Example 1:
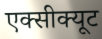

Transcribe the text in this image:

एक्सीक्यूट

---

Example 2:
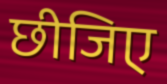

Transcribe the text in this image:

छीजिए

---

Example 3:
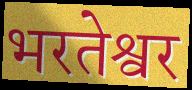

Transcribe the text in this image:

भरतेश्वर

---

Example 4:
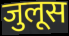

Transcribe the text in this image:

जुलूस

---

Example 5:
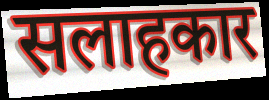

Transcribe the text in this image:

सलाहकार